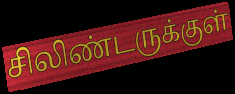
சிலிண்டருக்குள்